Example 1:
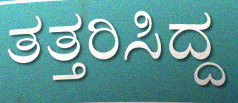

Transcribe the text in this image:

ತತ್ತರಿಸಿದ್ದ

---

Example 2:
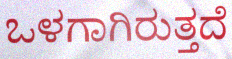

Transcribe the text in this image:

ಒಳಗಾಗಿರುತ್ತದೆ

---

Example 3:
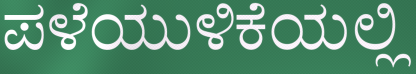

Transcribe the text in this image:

ಪಳೆಯುಳಿಕೆಯಲ್ಲಿ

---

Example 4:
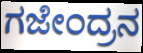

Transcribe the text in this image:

ಗಜೇಂದ್ರನ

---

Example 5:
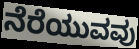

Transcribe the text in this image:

ನೆರೆಯುವವು